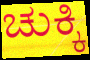
ಚುಕ್ಕಿ